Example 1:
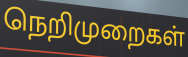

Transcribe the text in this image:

நெறிமுறைகள்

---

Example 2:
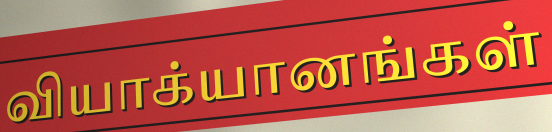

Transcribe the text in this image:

வியாக்யானங்கள்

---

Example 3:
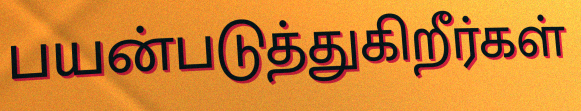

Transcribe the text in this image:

பயன்படுத்துகிறீர்கள்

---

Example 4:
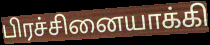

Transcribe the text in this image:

பிரச்சினையாக்கி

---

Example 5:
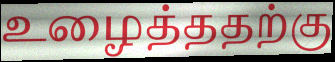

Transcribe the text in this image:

உழைத்ததற்கு